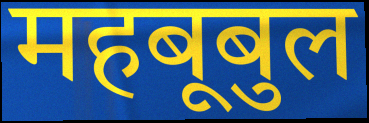
महबूबुल